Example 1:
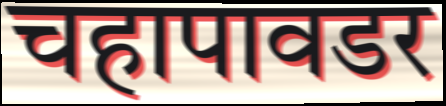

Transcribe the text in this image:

चहापावडर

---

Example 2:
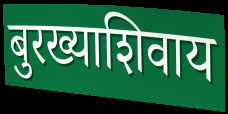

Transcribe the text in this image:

बुरख्याशिवाय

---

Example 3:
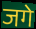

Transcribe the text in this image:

जगे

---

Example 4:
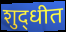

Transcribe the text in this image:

शुद्धीत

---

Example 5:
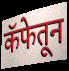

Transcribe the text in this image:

कॅफेतून